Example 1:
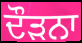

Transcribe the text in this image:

ਦੌੜਨਾ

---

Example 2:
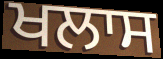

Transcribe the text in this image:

ਖਲਾਸ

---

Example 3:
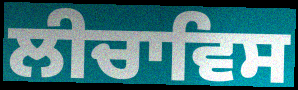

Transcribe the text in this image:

ਲੀਚਾਵਿਸ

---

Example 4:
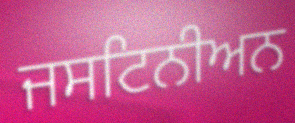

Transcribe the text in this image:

ਜਸਟਿਨੀਅਨ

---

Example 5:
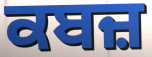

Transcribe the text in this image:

ਕਬਜ਼